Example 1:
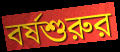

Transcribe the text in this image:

বর্ষশুরুর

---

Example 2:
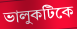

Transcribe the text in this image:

ভালুকটিকে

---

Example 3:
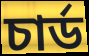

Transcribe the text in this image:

চার্ড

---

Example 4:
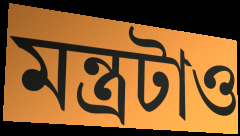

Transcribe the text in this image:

মন্ত্রটাও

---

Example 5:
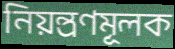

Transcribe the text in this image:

নিয়ন্ত্রণমূলক